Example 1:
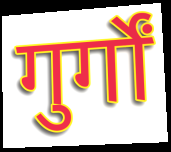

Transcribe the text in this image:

गुर्गों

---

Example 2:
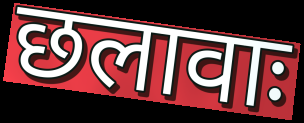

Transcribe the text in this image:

छलावाः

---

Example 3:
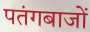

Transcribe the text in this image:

पतंगबाजों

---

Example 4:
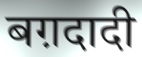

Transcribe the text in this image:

बग़दादी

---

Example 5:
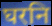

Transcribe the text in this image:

घरनि